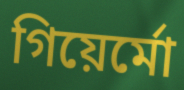
গিয়ের্মো